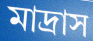
মাদ্রাস